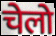
चेलो